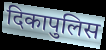
दिकापुलिस